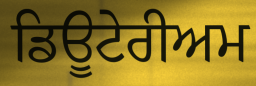
ਡਿਊਟੇਰੀਅਮ